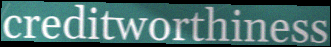
creditworthiness